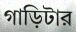
গাড়িটার